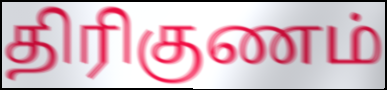
திரிகுணம்